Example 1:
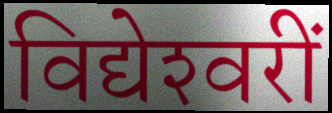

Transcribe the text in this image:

विद्येश्वरीं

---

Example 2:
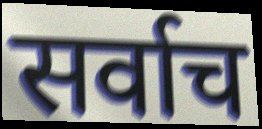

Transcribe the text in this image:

सर्वाच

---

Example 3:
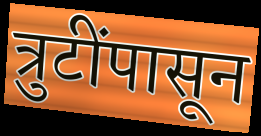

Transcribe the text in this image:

त्रुटींपासून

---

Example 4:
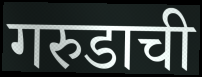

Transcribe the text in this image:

गरुडाची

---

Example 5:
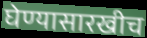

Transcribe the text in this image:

घेण्यासारखीच